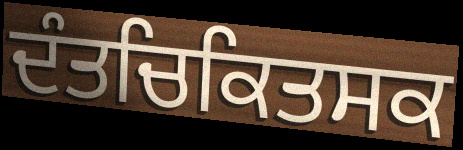
ਦੰਤਚਿਕਿਤਸਕ